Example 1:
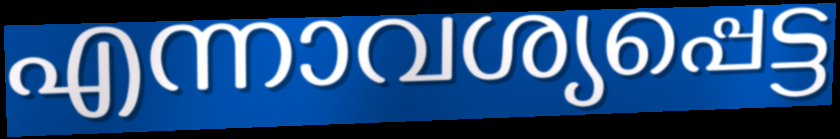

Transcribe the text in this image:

എന്നാവശ്യപ്പെട്ട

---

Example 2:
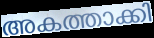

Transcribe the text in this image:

അകത്താക്കി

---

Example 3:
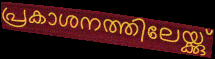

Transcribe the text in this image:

പ്രകാശനത്തിലേയ്ക്കു്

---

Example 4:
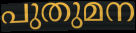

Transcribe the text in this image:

പുതുമന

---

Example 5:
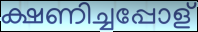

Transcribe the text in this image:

ക്ഷണിച്ചപ്പോള്